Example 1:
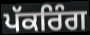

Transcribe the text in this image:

ਪੱਕਰਿੰਗ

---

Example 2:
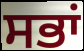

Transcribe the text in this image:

ਸਭਾਂ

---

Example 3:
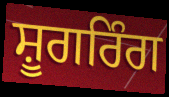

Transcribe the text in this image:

ਸ਼ੂਗਰਿੰਗ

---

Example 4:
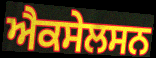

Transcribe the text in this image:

ਐਕਸੇਲਸਨ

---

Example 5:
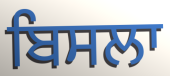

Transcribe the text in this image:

ਬਿਸਲਾ